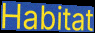
Habitat